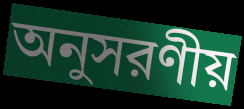
অনুসরণীয়